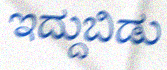
ಇದ್ದುಬಿಡು